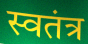
स्‍वतंत्र